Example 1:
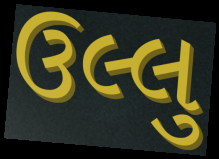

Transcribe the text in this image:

ઉલ્લુ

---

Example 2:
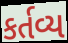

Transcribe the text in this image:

કર્તવ્ય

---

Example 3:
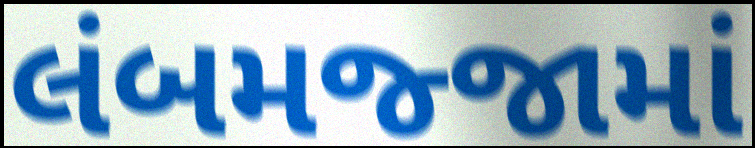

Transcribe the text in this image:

લંબમજ્જામાં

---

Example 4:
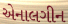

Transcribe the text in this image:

એનાલગીન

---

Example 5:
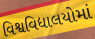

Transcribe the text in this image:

વિશ્વવિદ્યાલયોમાં